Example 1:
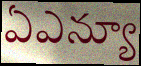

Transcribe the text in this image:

ఏఎన్యూ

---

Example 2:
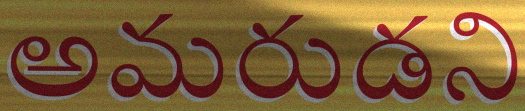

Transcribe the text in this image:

అమరుడని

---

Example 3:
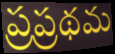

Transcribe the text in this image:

ప్రప్రథమ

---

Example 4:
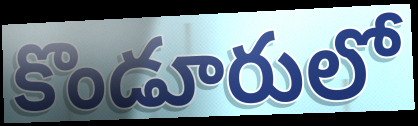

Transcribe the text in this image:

కొండూరులో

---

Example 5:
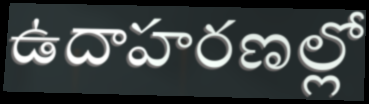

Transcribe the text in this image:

ఉదాహరణల్లో